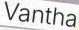
Vantha